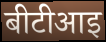
बीटीआइ